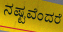
ನಷ್ಟವೆಂದರೆ